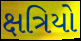
ક્ષત્રિયો